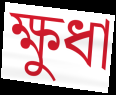
ক্ষুধা